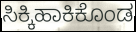
ಸಿಕ್ಕಿಹಾಕಿಕೊಂಡ